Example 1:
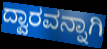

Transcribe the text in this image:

ದ್ವಾರವನ್ನಾಗಿ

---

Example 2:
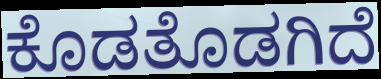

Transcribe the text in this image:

ಕೊಡತೊಡಗಿದೆ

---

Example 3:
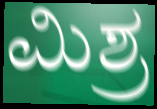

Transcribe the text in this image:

ಮಿಶ್ರ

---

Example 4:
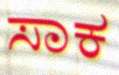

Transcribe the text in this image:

ಸಾಕ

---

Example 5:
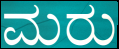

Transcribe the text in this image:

ಮರು